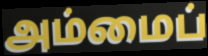
அம்மைப்